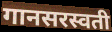
गानसरस्वती